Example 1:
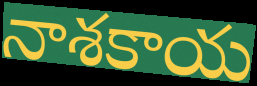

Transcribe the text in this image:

నాశకాయ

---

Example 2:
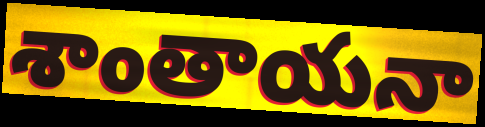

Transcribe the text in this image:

శాంతాయనా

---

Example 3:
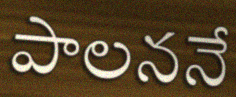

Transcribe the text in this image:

పాలననే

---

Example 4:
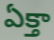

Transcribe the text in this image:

ఏక్తా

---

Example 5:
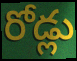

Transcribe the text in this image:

రోడ్లు